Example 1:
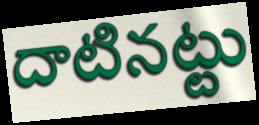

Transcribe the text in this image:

దాటినట్టు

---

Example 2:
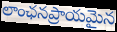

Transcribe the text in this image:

లాంఛనప్రాయమైన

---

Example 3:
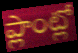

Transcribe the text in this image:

ప్లాంట్లో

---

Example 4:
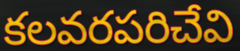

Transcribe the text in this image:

కలవరపరిచేవి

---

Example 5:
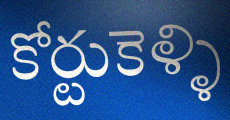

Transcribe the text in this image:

కోర్టుకెళ్ళి